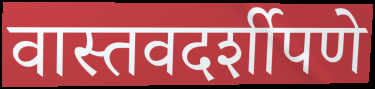
वास्तवदर्शीपणे